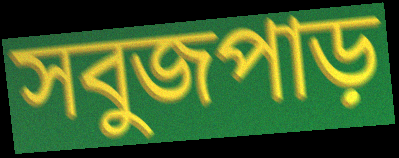
সবুজপাড়